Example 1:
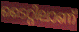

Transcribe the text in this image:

ടൈറ്റിലാണ്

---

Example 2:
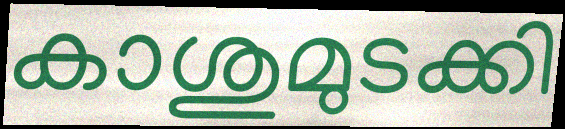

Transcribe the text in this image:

കാശുമുടക്കി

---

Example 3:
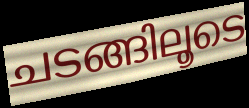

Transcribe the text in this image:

ചടങ്ങിലൂടെ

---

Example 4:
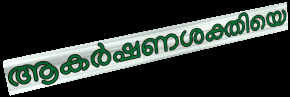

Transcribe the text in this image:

ആകർഷണശക്തിയെ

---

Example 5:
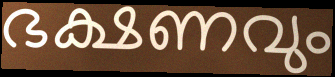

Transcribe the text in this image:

ഭക്ഷണവും